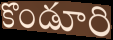
కొండూరి